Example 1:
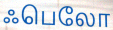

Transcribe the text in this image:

ஃபெலோ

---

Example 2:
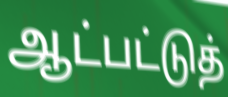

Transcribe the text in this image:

ஆட்பட்டுத்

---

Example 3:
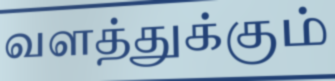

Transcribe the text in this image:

வளத்துக்கும்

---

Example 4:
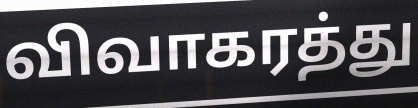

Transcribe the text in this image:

விவாகரத்து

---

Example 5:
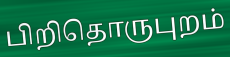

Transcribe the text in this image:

பிறிதொருபுறம்